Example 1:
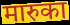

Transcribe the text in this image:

मारुका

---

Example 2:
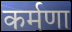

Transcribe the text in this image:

कर्मणा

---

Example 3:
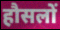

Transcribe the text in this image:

हौसलों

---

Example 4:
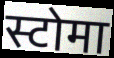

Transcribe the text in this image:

स्टोमा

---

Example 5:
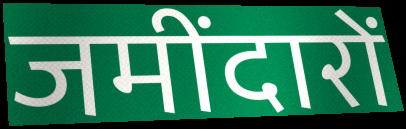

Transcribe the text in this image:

जमींदारों